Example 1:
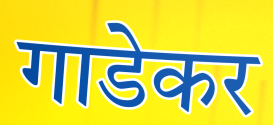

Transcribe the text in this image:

गाडेकर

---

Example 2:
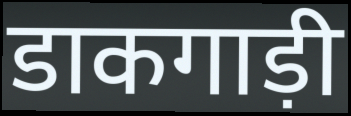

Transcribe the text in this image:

डाकगाड़ी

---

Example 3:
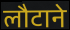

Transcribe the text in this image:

लौटाने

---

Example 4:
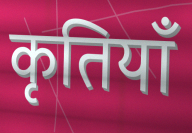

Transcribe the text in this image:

कृतियाँ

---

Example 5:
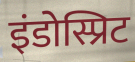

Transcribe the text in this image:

इंडोस्प्रिट